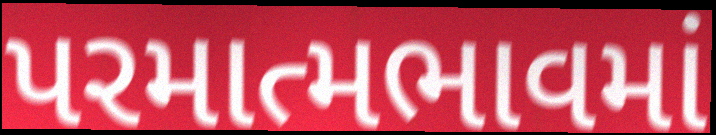
પરમાત્મભાવમાં